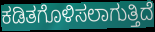
ಕಡಿತಗೊಳಿಸಲಾಗುತ್ತಿದೆ